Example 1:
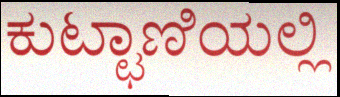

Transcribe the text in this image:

ಕುಟ್ಟಾಣಿಯಲ್ಲಿ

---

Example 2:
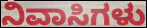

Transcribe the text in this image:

ನಿವಾಸಿಗಳು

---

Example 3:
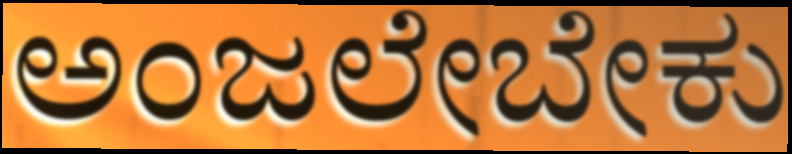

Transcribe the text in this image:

ಅಂಜಲೇಬೇಕು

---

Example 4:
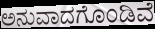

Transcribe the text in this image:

ಅನುವಾದಗೊಂಡಿವೆ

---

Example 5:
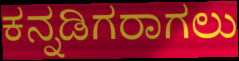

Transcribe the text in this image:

ಕನ್ನಡಿಗರಾಗಲು